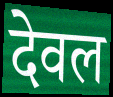
देवल